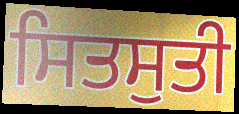
ਸਿਤਸੁਤੀ